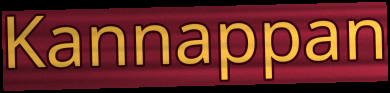
Kannappan